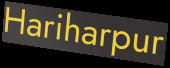
Hariharpur